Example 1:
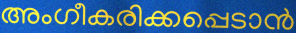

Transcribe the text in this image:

അംഗീകരിക്കപ്പെടാൻ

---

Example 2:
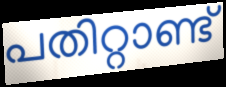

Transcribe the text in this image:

പതിറ്റാണ്ട്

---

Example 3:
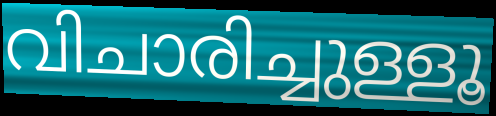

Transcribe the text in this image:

വിചാരിച്ചുള്ളൂ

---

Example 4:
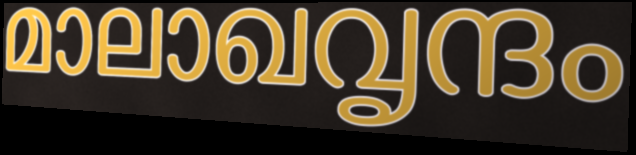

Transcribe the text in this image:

മാലാഖവൃന്ദം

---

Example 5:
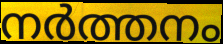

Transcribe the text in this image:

നർത്തനം